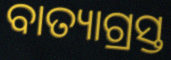
ବାତ୍ୟାଗ୍ରସ୍ତ